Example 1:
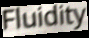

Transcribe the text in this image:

Fluidity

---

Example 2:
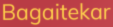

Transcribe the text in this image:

Bagaitekar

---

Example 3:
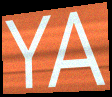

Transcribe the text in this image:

YA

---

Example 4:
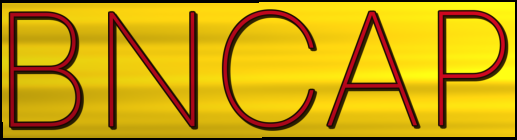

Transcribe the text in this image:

BNCAP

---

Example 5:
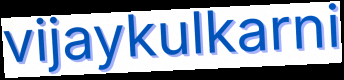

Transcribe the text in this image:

vijaykulkarni